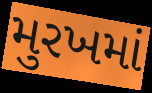
મુરખમાં